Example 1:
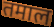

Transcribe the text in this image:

तमाल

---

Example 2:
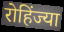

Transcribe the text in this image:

रोहिंज्या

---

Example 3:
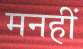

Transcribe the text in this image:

मनहीं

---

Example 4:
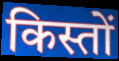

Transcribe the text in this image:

किस्तों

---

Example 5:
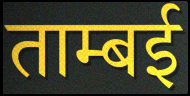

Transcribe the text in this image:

ताम्बई